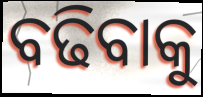
ବଢିବାକୁ